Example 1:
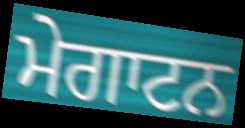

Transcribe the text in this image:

ਮੇਗਾਟਨ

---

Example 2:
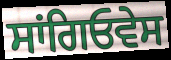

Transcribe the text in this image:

ਸਾਂਗਿਓਵੇਸ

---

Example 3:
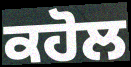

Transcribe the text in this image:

ਕਹੋਲ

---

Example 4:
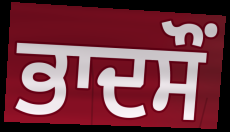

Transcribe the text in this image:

ਭਾਦਸੌਂ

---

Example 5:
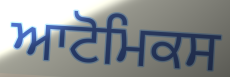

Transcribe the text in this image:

ਆਟੋਮਿਕਸ